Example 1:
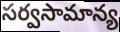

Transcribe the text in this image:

సర్వసామాన్య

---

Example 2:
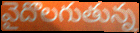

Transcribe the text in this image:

వైదొలగుతున్న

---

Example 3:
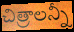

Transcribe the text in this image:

చిత్రాలన్నీ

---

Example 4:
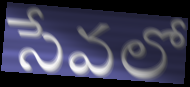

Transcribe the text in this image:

సేవలో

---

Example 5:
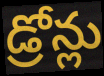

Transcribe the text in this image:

డ్రోన్లు